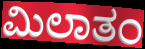
ಮಿಲಾತಂ